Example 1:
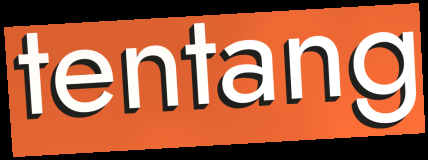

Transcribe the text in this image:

tentang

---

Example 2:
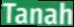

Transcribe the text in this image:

Tanah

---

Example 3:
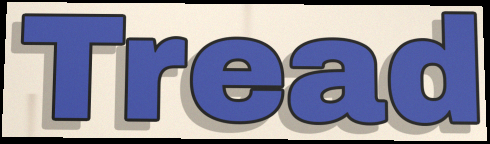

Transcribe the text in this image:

Tread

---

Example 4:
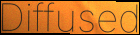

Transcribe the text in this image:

Diffused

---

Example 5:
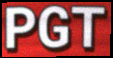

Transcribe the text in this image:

PGT